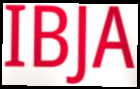
IBJA